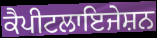
ਕੈਪੀਟਲਾਇਜੇਸ਼ਨ